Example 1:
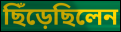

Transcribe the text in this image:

ছিঁড়েছিলেন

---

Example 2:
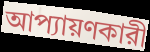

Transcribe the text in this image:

আপ্যায়ণকারী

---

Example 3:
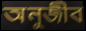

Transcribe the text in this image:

অনুজীব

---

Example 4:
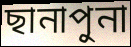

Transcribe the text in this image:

ছানাপুনা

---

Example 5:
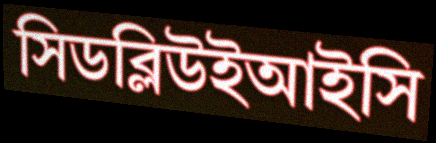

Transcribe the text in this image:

সিডব্লিউইআইসি